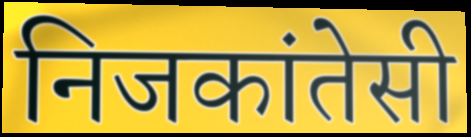
निजकांतेसी